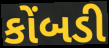
કોંબડી